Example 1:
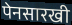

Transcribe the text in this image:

पेनसारखी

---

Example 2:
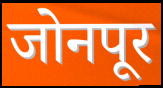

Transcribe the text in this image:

जोनपूर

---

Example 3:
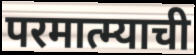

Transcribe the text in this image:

परमात्म्याची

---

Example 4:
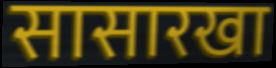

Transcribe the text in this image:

सासारखा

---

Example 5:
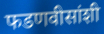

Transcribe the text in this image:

फडणवीसांशी